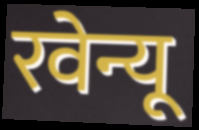
रवेन्यू